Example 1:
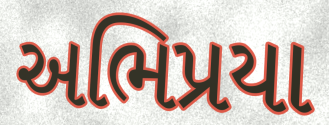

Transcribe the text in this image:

અભિપ્રયા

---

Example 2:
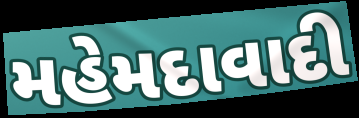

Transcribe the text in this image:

મહેમદાવાદી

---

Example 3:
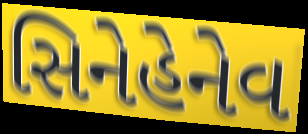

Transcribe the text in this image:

સિનેહેનેવ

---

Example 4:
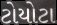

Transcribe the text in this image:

ટોયોટા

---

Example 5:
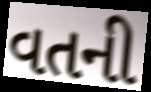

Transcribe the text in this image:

વતની